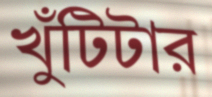
খুঁটিটার